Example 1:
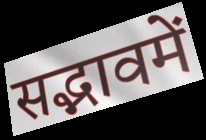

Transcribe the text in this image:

सद्भावमें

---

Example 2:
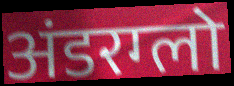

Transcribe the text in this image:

अंडरग्लो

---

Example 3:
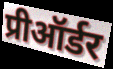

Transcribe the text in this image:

प्रीऑर्डर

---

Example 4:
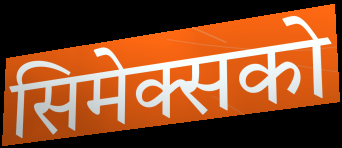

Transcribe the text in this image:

सिमेक्सको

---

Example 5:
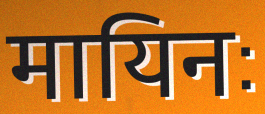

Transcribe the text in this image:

मायिनः